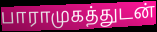
பாராமுகத்துடன்